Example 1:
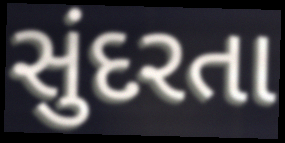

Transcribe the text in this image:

સુંદરતા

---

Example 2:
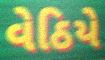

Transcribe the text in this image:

વેઠિયે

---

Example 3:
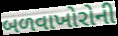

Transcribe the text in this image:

બળવાખોરોની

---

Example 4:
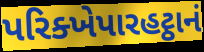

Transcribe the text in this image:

પરિક્ખેપારહટ્ઠાનં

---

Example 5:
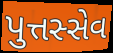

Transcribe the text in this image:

પુત્તસ્સેવ